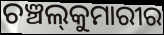
ଚଞ୍ଚଲ୍‍କୁମାରୀର